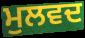
ਮੁਲਵਦ